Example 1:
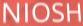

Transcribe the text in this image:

NIOSH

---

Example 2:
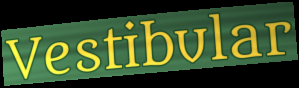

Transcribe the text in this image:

Vestibular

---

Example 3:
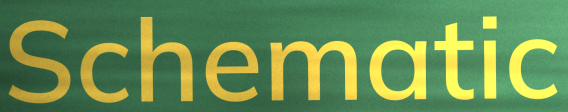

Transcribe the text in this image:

Schematic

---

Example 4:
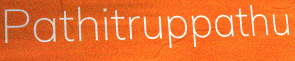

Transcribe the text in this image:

Pathitruppathu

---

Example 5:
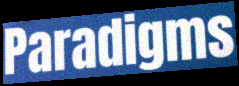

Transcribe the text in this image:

Paradigms